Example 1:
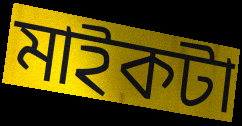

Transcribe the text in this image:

মাইকটা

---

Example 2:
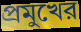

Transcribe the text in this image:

প্রমুখের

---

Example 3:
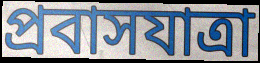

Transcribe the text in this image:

প্রবাসযাত্রা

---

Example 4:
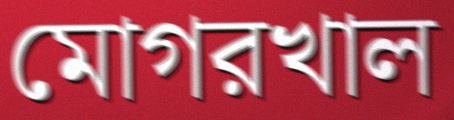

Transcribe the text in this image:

মোগরখাল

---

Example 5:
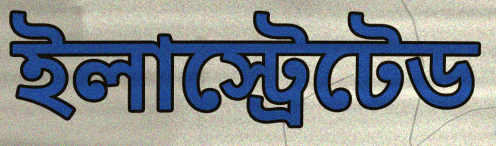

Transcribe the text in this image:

ইলাস্ট্রেটেড